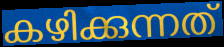
കഴിക്കുന്നത്